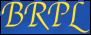
BRPL